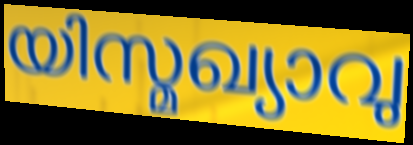
യിസ്മഖ്യാവു